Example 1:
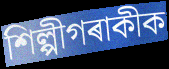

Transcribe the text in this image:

শিল্পীগৰাকীক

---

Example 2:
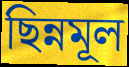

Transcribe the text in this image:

ছিন্নমূল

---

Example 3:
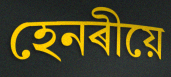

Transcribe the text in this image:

হেনৰীয়ে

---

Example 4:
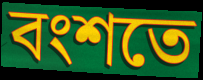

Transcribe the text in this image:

বংশতে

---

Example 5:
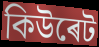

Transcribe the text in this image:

কিউৰেট